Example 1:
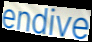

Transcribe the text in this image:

endive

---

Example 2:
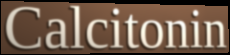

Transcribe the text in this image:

Calcitonin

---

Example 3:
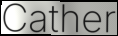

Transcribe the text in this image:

Cather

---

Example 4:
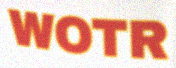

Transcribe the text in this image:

WOTR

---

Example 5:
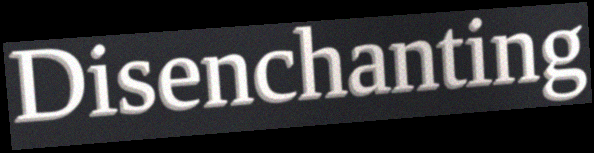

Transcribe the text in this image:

Disenchanting